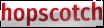
hopscotch